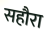
सहौरा